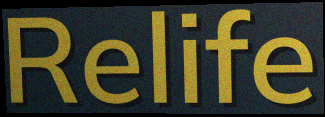
Relife